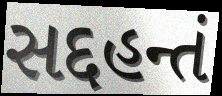
સદ્દહન્તં